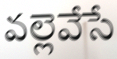
వల్లెవేసే